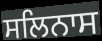
ਸਲਿਨਾਸ